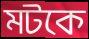
মটকে